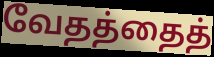
வேதத்தைத்